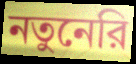
নতুনেরি